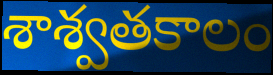
శాశ్వతకాలం